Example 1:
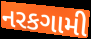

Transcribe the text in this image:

નરકગામી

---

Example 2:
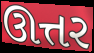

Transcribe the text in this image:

ઊત્તર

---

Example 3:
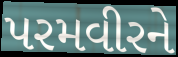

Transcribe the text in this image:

પરમવીરને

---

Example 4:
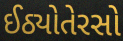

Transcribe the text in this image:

ઈઠ્યોતેરસો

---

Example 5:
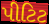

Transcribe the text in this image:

પીટિટ